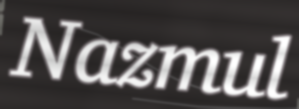
Nazmul